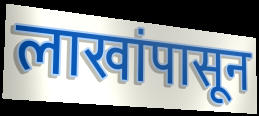
लाखांपासून